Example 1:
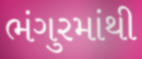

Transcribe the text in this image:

ભંગુરમાંથી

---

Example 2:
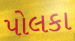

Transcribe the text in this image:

પોલકા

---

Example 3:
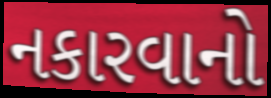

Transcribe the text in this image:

નકારવાનો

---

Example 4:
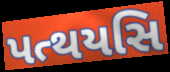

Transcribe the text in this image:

પત્થયસિ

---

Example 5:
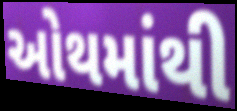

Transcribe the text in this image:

ઓથમાંથી